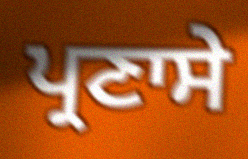
ਪ੍ਰਣਾਸੇ